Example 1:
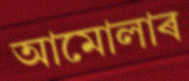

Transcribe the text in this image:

আমোলাৰ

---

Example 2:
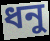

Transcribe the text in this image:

ধনু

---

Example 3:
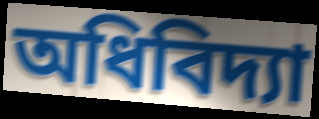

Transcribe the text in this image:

অধিবিদ্যা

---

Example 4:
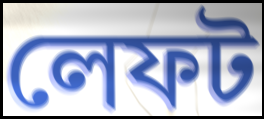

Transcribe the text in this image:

লেফট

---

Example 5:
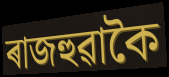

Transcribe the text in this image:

ৰাজহুৱাকৈ